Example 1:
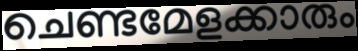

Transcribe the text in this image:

ചെണ്ടമേളക്കാരും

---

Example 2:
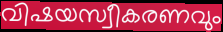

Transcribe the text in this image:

വിഷയസ്വീകരണവും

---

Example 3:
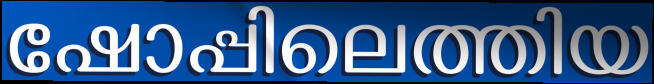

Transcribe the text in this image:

ഷോപ്പിലെത്തിയ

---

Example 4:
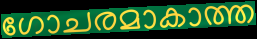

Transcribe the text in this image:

ഗോചരമാകാത്ത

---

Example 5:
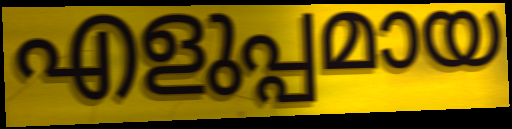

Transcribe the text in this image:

എളുപ്പമായ